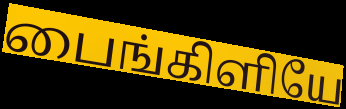
பைங்கிளியே